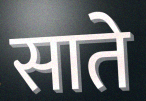
साते